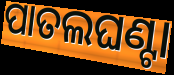
ପାତଲଘଣ୍ଟା